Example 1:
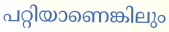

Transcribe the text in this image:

പറ്റിയാണെങ്കിലും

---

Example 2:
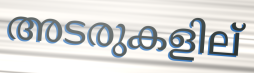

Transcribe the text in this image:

അടരുകളില്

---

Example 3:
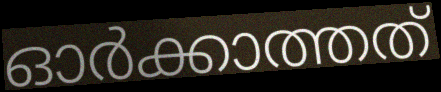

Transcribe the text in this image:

ഓർക്കാത്തത്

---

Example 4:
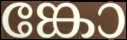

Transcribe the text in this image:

ങ്കോ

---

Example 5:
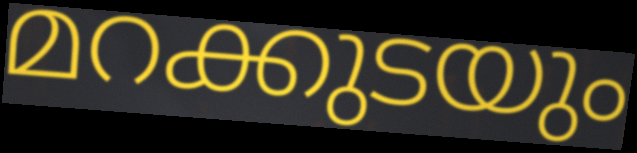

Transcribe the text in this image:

മറക്കുടയും